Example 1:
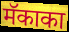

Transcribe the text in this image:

मॅकाका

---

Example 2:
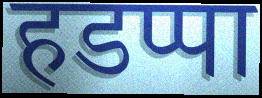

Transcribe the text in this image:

हडप्पा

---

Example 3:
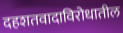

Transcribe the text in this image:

दहशतवादाविरोधातील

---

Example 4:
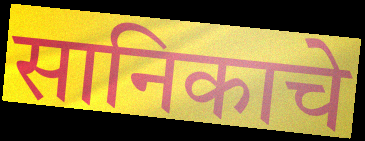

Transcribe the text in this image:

सानिकाचे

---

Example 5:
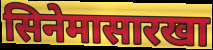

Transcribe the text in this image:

सिनेमासारखा